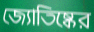
জ্যোতিষ্কের